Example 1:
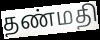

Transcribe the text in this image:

தண்மதி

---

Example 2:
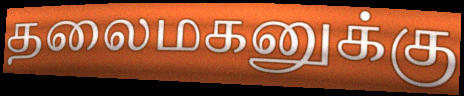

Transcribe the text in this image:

தலைமகனுக்கு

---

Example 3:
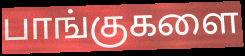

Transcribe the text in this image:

பாங்குகளை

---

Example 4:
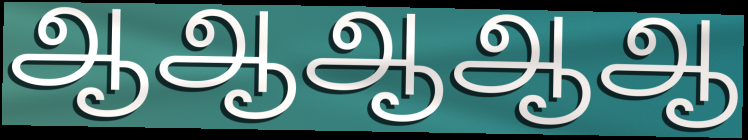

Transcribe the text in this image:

ஆஆஆஆஆ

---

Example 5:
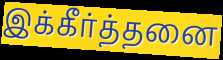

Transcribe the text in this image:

இக்கீர்த்தனை